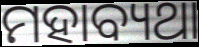
ମହାବ୍ୟଥା